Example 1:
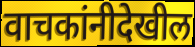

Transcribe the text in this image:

वाचकांनीदेखील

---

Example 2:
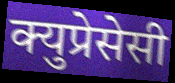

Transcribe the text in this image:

क्युप्रेसेसी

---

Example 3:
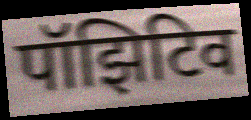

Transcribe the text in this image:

पॉझिटिव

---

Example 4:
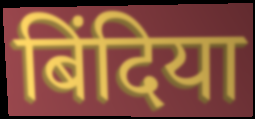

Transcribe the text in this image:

बिंदिया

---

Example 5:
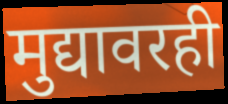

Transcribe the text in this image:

मुद्यावरही